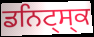
ਡਨਿਟ੍ਸ੍ਕ